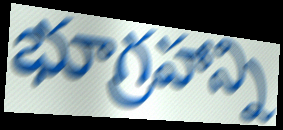
భూగ్రహాన్ని